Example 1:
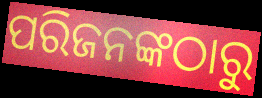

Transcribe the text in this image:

ପରିଜନଙ୍କଠାରୁ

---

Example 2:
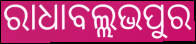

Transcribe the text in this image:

ରାଧାବଲ୍ଲଭପୁର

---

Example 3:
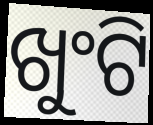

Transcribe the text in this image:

ଖୁଂଟି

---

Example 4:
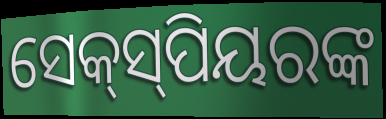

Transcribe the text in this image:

ସେକ୍‌ସ୍‌ପିୟରଙ୍କ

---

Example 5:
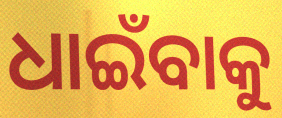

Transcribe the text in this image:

ଧାଇଁବାକୁ